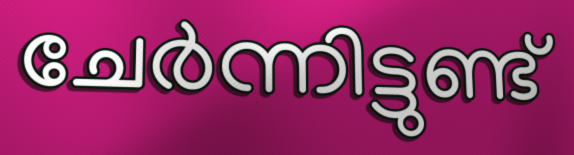
ചേർന്നിട്ടുണ്ട്